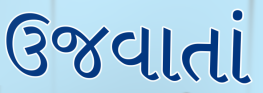
ઉજવાતાં